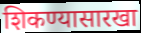
शिकण्यासारखा